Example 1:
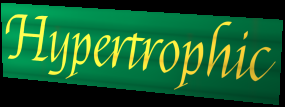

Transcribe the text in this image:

Hypertrophic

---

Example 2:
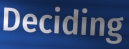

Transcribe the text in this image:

Deciding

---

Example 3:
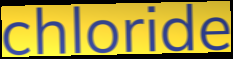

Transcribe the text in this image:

chloride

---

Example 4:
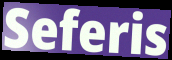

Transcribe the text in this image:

Seferis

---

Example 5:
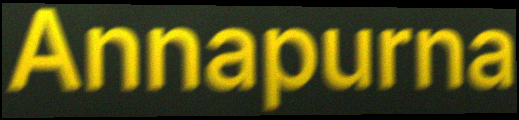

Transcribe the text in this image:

Annapurna